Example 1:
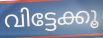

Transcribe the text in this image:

വിട്ടേക്കൂ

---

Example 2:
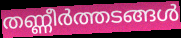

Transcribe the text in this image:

തണ്ണീർത്തടങ്ങൾ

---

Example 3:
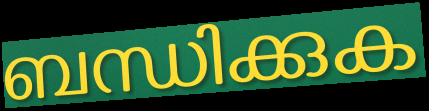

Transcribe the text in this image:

ബന്ധിക്കുക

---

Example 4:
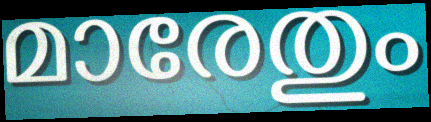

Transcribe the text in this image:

മാരേതും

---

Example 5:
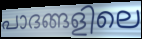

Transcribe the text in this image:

പാദങ്ങളിലെ